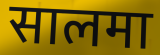
सालमा